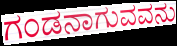
ಗಂಡನಾಗುವವನು